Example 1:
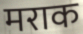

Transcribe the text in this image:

मराक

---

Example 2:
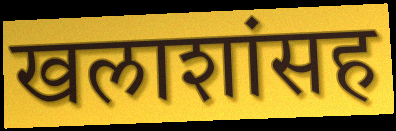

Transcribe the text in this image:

खलाशांसह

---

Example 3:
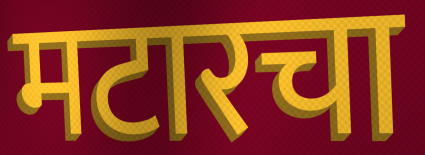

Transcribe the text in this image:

मटारचा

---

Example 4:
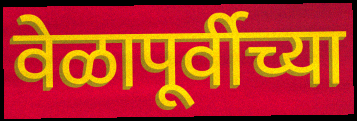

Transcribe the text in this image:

वेळापूर्वीच्या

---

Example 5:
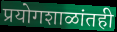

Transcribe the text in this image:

प्रयोगशाळांतही